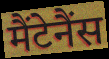
मैंटेनैंस